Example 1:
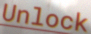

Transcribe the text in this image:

Unlock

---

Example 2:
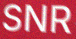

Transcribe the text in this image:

SNR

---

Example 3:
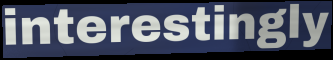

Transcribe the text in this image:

interestingly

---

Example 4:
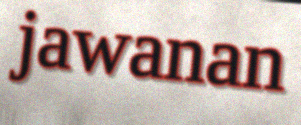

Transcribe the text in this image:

jawanan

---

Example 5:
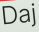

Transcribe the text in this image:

Daj